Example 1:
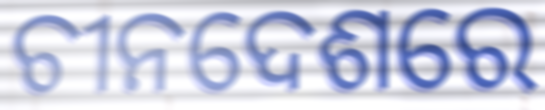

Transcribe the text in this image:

ଚୀନଦେଶରେ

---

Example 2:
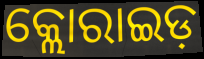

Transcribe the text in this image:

କ୍ଲୋରାଇଡ଼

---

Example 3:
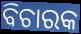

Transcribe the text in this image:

ବିଚାରକ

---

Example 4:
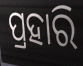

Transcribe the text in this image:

ପ୍ରହାରି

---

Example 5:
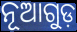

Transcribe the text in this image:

ନୂଆଗୁଡ଼